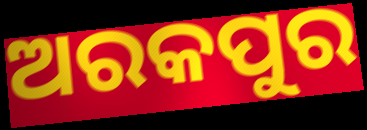
ଅରକପୁର